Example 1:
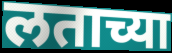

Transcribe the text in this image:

लताच्या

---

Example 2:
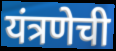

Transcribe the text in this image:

यंत्रणेची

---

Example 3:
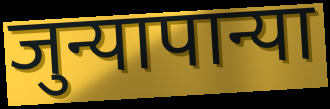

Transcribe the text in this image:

जुन्यापान्या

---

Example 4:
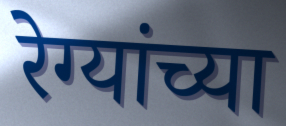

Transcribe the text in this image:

रेग्यांच्या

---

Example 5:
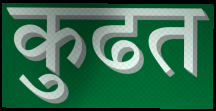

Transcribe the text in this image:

कुढत